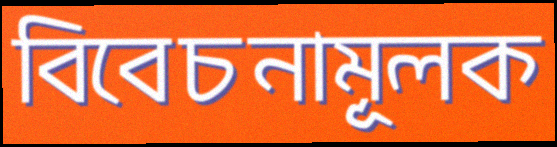
বিবেচনামূলক